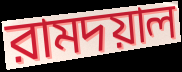
রামদয়াল